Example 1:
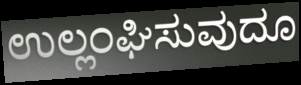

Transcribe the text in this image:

ಉಲ್ಲಂಘಿಸುವುದೂ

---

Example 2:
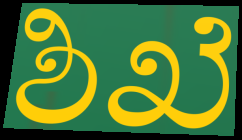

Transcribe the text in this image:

ಶಿಖೆ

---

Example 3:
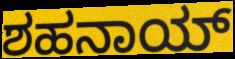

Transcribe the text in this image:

ಶಹನಾಯ್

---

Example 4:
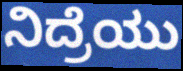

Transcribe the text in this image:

ನಿದ್ರೆಯು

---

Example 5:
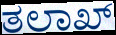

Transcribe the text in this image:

ತಲಾಖ್